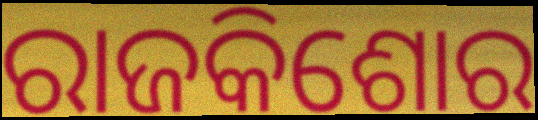
ରାଜକିଶୋର